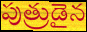
పుత్రుడైన